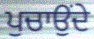
ਪੁਚਾਉਂਦੇ